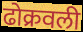
ढोक्रवली